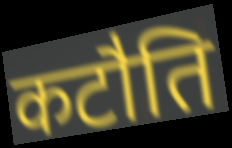
कटौति